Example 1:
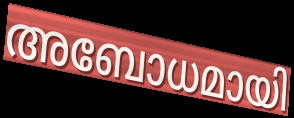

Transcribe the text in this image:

അബോധമായി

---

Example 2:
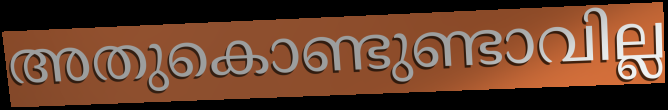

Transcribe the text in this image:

അതുകൊണ്ടുണ്ടാവില്ല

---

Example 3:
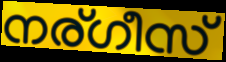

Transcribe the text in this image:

നര്ഗീസ്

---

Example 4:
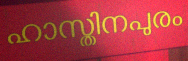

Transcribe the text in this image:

ഹാസ്തിനപുരം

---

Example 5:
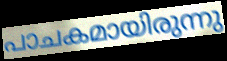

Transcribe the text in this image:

പാചകമായിരുന്നു